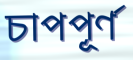
চাপপূর্ণ